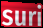
suri